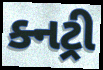
ક્નટ્રી